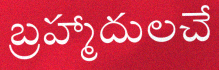
బ్రహ్మాదులచే